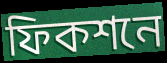
ফিকশনে